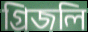
গ্রিজলি